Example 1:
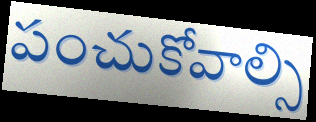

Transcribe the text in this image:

పంచుకోవాల్సి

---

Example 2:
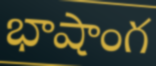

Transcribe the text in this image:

భాషాంగ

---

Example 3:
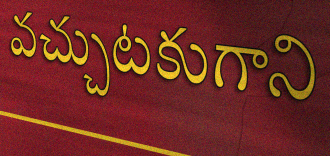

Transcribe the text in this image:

వచ్చుటకుగాని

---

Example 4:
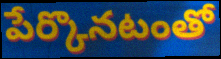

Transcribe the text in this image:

పేర్కొనటంతో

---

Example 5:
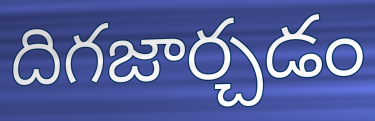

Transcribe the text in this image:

దిగజార్చడం